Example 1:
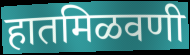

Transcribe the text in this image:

हातमिळवणी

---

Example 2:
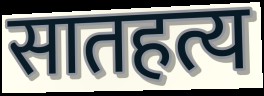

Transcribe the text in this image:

सातहत्य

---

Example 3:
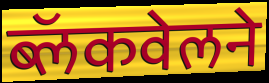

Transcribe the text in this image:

ब्लॅकवेलने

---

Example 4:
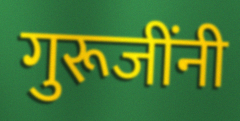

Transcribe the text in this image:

गुरूजींनी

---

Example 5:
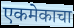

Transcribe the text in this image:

एकमेकाचा